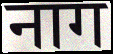
नाग